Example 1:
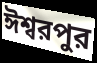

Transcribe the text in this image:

ঈশ্বরপুর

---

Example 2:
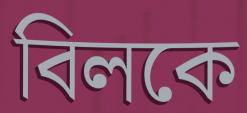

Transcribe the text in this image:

বিলকে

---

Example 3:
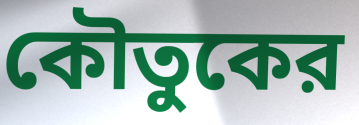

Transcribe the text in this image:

কৌতুকের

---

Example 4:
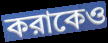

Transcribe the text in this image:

করাকেও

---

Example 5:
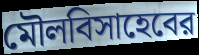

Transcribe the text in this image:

মৌলবিসাহেবের